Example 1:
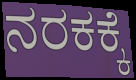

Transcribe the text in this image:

ನರಕಕ್ಕೆ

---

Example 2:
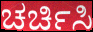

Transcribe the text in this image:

ಚರ್ಚಿಸಿ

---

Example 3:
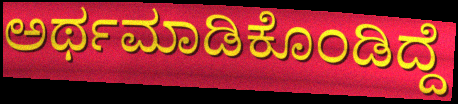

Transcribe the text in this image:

ಅರ್ಥಮಾಡಿಕೊಂಡಿದ್ದೆ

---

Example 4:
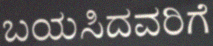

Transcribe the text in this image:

ಬಯಸಿದವರಿಗೆ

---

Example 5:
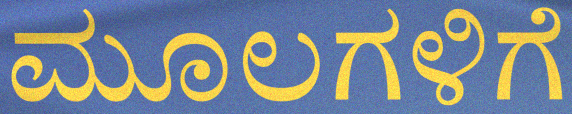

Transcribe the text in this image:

ಮೂಲಗಳಿಗೆ